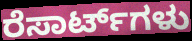
ರೆಸಾರ್ಟ್‌ಗಳು